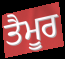
ਤੈਮੂਰ